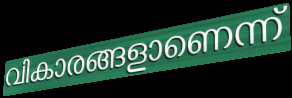
വികാരങ്ങളാണെന്ന്